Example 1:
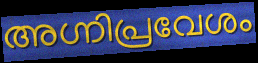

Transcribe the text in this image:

അഗ്നിപ്രവേശം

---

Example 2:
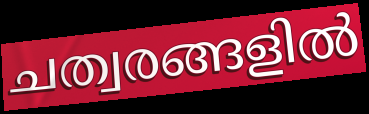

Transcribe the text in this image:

ചത്വരങ്ങളിൽ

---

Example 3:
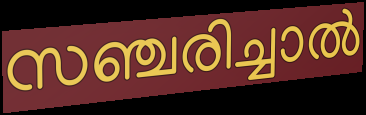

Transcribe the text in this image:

സഞ്ചരിച്ചാൽ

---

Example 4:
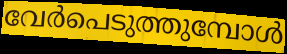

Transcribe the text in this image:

വേർപെടുത്തുമ്പോൾ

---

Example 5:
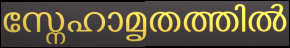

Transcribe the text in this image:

സ്നേഹാമൃതത്തിൽ